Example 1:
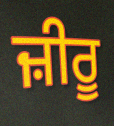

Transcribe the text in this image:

ਜ਼ੀਰੂ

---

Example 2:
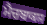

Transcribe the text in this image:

ਮੈਚਬਾਕਸ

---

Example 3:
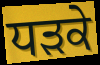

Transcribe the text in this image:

ਧੜਕੇ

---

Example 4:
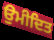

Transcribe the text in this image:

ਉਮੀਦਿਤ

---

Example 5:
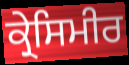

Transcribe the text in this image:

ਕ੍ਰੇਸਿਮੀਰ